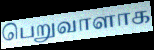
பெறுவாளாக